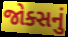
જોક્સનું